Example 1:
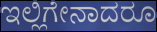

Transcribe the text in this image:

ಇಲ್ಲಿಗೇನಾದರೂ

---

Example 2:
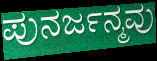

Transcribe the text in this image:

ಪುನರ್ಜನ್ಮವು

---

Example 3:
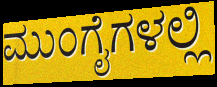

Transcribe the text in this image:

ಮುಂಗೈಗಳಲ್ಲಿ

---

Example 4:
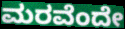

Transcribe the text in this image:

ಮರವೆಂದೇ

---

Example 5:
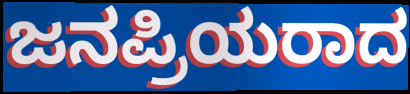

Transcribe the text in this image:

ಜನಪ್ರಿಯರಾದ